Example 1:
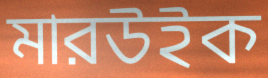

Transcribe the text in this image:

মারউইক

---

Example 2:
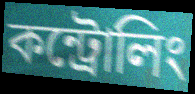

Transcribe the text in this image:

কন্ট্রোলিং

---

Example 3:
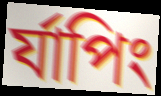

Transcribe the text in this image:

র্যাপিং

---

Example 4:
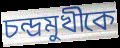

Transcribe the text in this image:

চন্দ্রমুখীকে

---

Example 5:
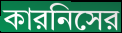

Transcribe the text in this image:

কারনিসের